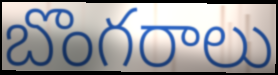
బొంగరాలు